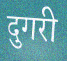
दुगरी